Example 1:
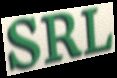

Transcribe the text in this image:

SRL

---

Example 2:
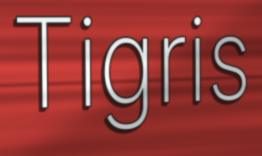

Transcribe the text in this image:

Tigris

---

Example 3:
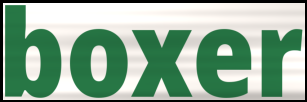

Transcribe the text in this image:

boxer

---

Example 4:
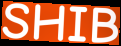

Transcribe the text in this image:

SHIB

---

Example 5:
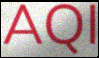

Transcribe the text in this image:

AQI